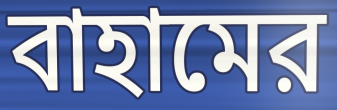
বাহামের